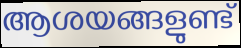
ആശയങ്ങളുണ്ട്